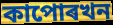
কাপোৰখন